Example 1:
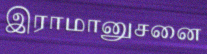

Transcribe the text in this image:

இராமானுசனை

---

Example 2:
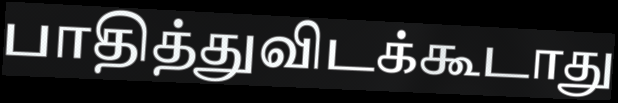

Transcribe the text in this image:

பாதித்துவிடக்கூடாது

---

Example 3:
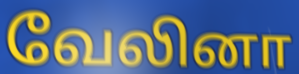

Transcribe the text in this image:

வேலினா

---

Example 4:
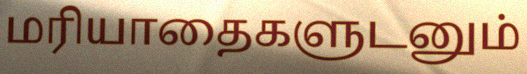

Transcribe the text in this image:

மரியாதைகளுடனும்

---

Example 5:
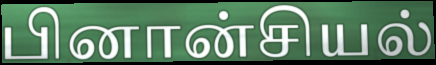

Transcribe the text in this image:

பினான்சியல்